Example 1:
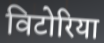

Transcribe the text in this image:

विटोरिया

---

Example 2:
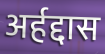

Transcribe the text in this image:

अर्हद्दास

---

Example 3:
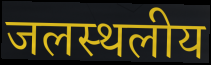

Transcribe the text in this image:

जलस्थलीय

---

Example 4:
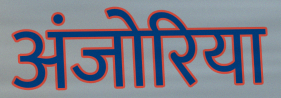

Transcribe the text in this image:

अंजोरिया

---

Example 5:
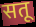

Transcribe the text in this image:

सतू